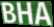
BHA